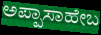
ಅಪ್ಪಾಸಾಹೇಬ